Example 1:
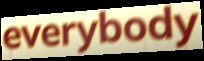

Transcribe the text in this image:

everybody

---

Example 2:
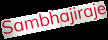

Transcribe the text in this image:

Sambhajiraje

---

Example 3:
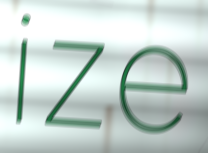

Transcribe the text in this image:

ize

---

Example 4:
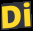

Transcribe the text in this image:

Di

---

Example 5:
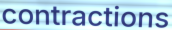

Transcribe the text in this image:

contractions